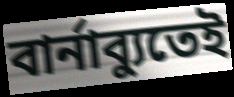
বার্নাব্যুতেই